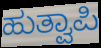
ಹುತ್ವಾಪಿ